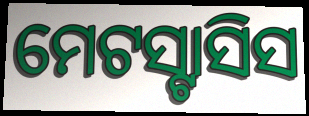
ମେଟସ୍ଟାସିସ